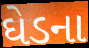
ઘેડના